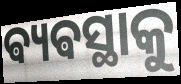
ଵ୍ୟଵସ୍ଥାକୁ